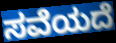
ಸವೆಯದೆ